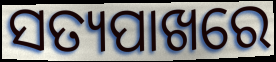
ସତ୍ୟପାଖରେ